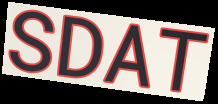
SDAT